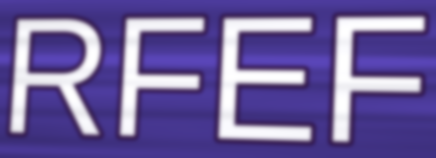
RFEF